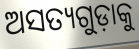
ଅସତ୍ୟଗୁଡ଼ାକୁ